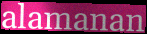
alamanan